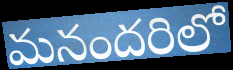
మనందరిలో